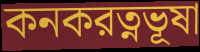
কনকরত্নভূষা